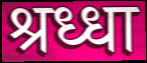
श्रध्धा